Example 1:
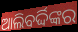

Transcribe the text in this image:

ଆଲିବର୍ଦ୍ଦିଙ୍କର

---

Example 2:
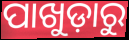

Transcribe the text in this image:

ପାଖୁଡ଼ାରୁ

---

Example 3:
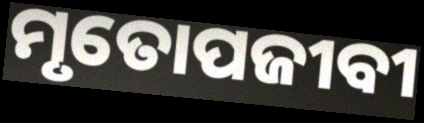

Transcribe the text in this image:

ମୃତୋପଜୀବୀ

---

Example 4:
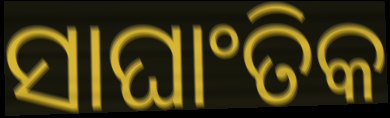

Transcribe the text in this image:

ସାଘାଂତିକ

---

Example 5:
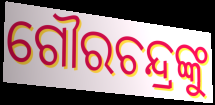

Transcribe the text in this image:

ଗୌରଚନ୍ଦ୍ରଙ୍କୁ